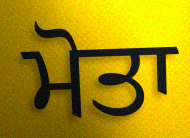
ਮੋਤਾ